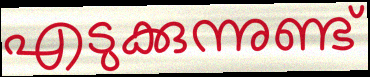
എടുക്കുന്നുണ്ട്